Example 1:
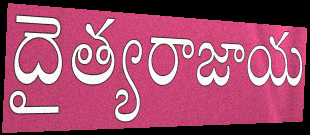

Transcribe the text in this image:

దైత్యరాజాయ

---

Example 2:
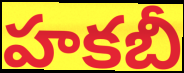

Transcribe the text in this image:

హకబీ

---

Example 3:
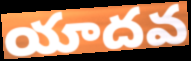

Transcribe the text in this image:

యాదవ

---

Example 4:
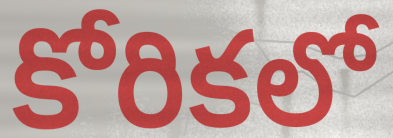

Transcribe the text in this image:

కోరికలో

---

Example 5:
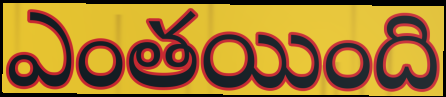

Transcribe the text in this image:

ఎంతయింది